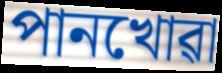
পানখোৱা